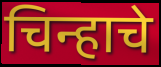
चिन्हाचे